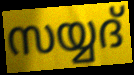
സയ്യദ്